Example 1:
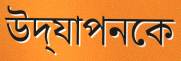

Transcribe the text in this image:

উদ্‌যাপনকে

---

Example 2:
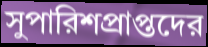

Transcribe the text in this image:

সুপারিশপ্রাপ্তদের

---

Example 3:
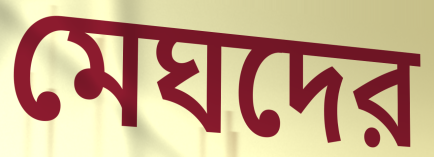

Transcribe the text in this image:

মেঘদের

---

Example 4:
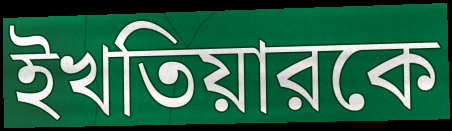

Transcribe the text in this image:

ইখতিয়ারকে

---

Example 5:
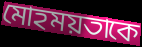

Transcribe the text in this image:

মোহময়তাকে